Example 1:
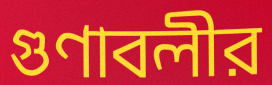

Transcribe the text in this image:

গুণাবলীর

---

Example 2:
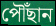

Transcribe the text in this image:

পৌঁছান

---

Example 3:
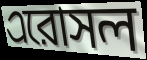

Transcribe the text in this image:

এরোসল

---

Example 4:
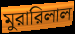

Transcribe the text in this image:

মুরারিলাল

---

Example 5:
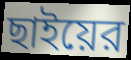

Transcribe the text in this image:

ছাইয়ের